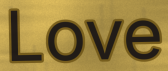
Love